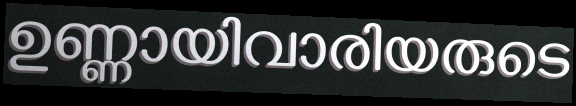
ഉണ്ണായിവാരിയരുടെ